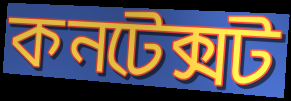
কনটেক্সট